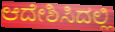
ಆದೇಶಿಸಿದಲ್ಲಿ